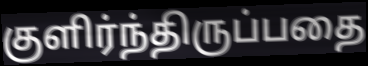
குளிர்ந்திருப்பதை